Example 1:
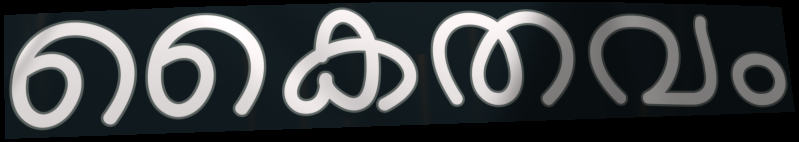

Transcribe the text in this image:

കൈതവം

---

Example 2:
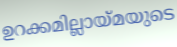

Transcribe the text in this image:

ഉറക്കമില്ലായ്മയുടെ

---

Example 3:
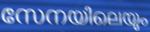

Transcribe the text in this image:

സേനയിലെയും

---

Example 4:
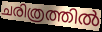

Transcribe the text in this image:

ചരിത്രത്തിൽ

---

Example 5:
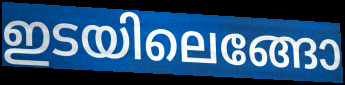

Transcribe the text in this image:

ഇടയിലെങ്ങോ